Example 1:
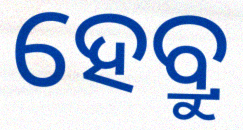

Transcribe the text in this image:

ହେବ୍ରୁ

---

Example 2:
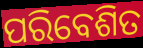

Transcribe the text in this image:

ପରିବେଶିତ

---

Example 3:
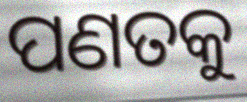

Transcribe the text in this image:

ପଣତକୁ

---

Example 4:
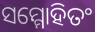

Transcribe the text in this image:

ସମ୍ମୋହିତଂ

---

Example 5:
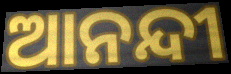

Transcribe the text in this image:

ଆନନ୍ଦୀ